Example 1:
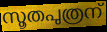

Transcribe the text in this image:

സൂതപുത്രന്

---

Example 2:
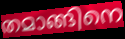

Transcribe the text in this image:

തമാങ്ങിനെ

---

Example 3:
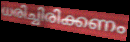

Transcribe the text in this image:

ധരിച്ചിരിക്കണം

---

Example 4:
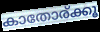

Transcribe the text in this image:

കാതോര്ക്കൂ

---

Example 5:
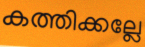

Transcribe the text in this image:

കത്തിക്കല്ലേ